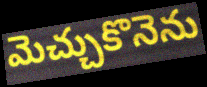
మెచ్చుకొనెను